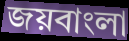
জয়বাংলা